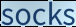
socks